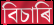
বিচাৰি